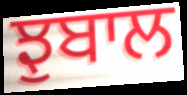
ਝੁਬਾਲ